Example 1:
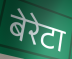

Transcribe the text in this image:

बेरेटा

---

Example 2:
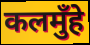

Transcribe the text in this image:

कलमुँहे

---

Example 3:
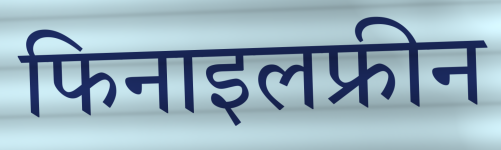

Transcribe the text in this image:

फिनाइलफ्रीन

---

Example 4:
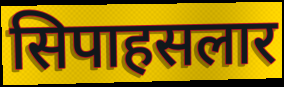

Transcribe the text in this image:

सिपाहसलार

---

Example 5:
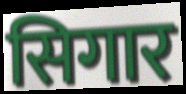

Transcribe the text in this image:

सिगार